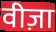
वीज़ा